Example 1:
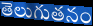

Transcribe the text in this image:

తెలుగుతనం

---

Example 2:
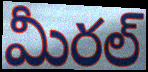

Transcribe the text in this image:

మీరల్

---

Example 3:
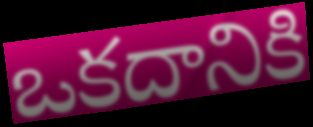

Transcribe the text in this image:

ఒకదానికి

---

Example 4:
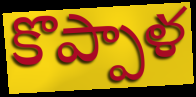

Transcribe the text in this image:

కొప్పాళ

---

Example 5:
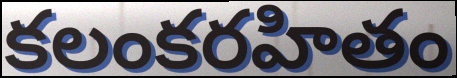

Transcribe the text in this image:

కలంకరహితం